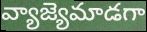
వ్యాజ్యెమాడగా